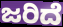
ಜರಿದೆ